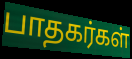
பாதகர்கள்